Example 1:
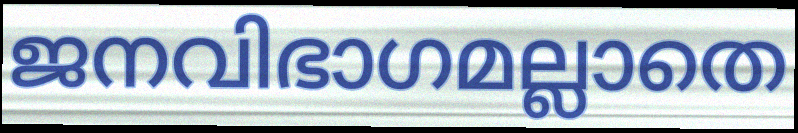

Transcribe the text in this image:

ജനവിഭാഗമല്ലാതെ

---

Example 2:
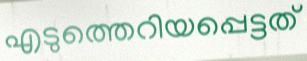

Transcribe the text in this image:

എടുത്തെറിയപ്പെട്ടത്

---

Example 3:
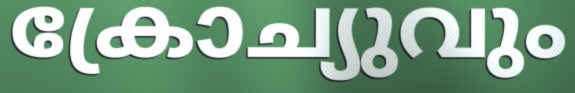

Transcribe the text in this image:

ക്രോച്യുവും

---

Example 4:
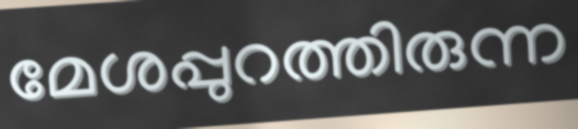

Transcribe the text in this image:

മേശപ്പുറത്തിരുന്ന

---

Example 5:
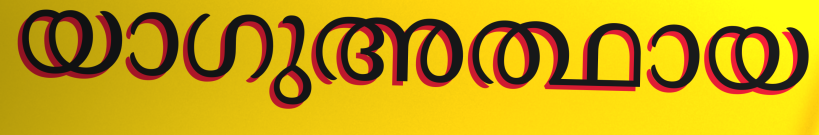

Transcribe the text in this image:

യാഗുഅത്ഥായ